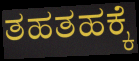
ತಹತಹಕ್ಕೆ